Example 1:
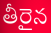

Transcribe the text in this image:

తీరైన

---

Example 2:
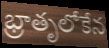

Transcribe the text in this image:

భ్రాతృలోకేన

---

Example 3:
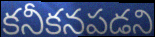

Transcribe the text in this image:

కనీకనపడని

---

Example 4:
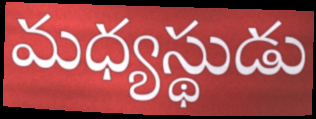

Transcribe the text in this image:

మధ్యస్థుడు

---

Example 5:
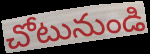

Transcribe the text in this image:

చోటునుండి